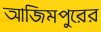
আজিমপুরের